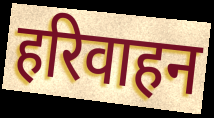
हरिवाहन